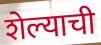
शेल्याची